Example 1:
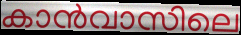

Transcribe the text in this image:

കാൻവാസിലെ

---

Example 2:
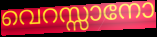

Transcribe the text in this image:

വെറസ്സാനോ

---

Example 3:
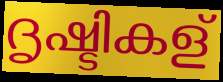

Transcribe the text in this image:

ദൃഷ്ടികള്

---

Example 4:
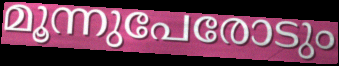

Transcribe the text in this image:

മൂന്നുപേരോടും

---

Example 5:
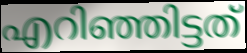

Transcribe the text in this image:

എറിഞ്ഞിട്ടത്